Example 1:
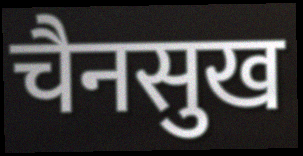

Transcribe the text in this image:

चैनसुख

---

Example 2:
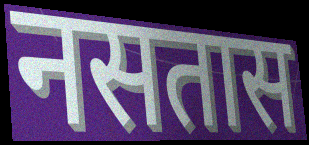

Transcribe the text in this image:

नसतास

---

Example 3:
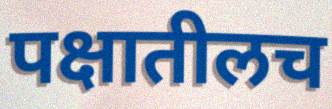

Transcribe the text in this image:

पक्षातीलच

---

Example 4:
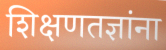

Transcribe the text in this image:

शिक्षणतज्ञांना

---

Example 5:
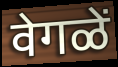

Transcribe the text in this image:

वेगळें